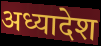
अध्यादेश